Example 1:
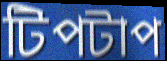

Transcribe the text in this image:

টিপটাপ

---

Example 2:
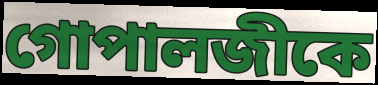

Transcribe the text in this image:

গোপালজীকে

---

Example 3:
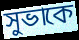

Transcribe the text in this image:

সুভাকে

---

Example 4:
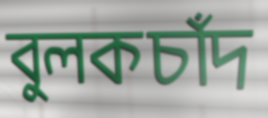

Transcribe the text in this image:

বুলকচাঁদ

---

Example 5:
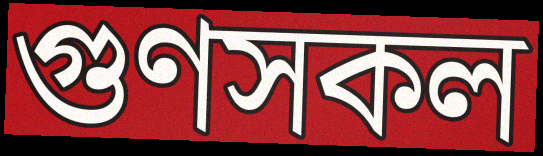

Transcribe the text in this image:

গুণসকল